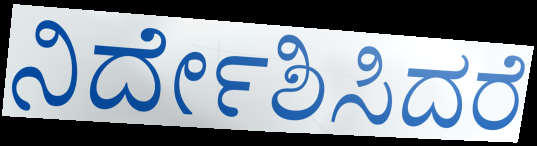
ನಿರ್ದೇಶಿಸಿದರೆ